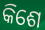
କିଶେ